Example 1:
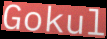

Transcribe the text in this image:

Gokul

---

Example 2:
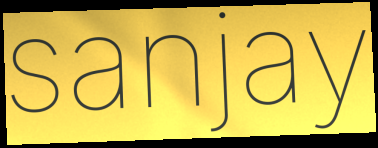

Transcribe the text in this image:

sanjay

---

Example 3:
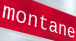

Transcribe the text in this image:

montane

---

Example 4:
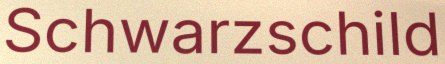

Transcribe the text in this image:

Schwarzschild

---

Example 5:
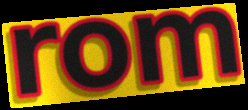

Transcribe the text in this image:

rom